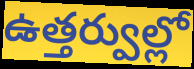
ఉత్తర్వుల్లో